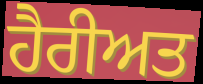
ਹੈਰੀਅਤ